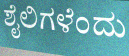
ಶೈಲಿಗಳೆಂದು